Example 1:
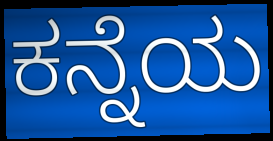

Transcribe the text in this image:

ಕನ್ನೆಯ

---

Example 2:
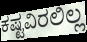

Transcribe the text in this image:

ಕಷ್ಟವಿರಲಿಲ್ಲ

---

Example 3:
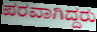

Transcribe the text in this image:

ಪರವಾಗಿದ್ದರು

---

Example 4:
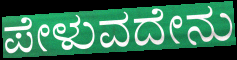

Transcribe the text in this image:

ಪೇಳುವದೇನು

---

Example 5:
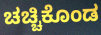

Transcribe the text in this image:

ಚಚ್ಚಿಕೊಂಡ